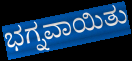
ಭಗ್ನವಾಯಿತು